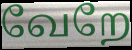
வேறே